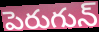
పెరుగున్